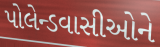
પોલેન્ડવાસીઓને